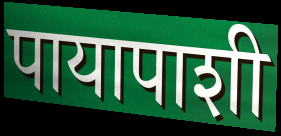
पायापाशी